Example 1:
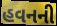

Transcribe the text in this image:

હવનની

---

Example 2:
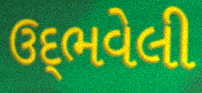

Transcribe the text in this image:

ઉદ્‌ભવેલી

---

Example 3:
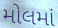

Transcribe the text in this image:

મોલમાં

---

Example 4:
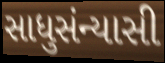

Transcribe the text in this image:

સાધુસંન્યાસી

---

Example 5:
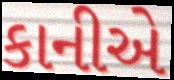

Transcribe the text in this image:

કાનીએ